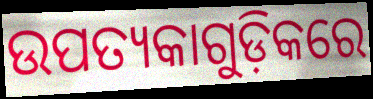
ଉପତ୍ୟକାଗୁଡ଼ିକରେ